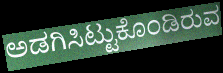
ಅಡಗಿಸಿಟ್ಟುಕೊಂಡಿರುವ